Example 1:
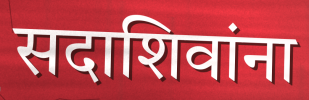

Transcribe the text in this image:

सदाशिवांना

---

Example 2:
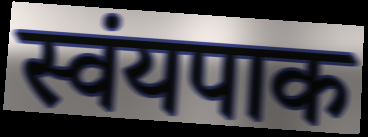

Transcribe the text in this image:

स्वंयपाक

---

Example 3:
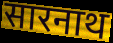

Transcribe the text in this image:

सारनाथ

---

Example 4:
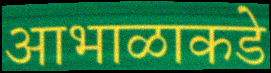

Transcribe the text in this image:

आभाळाकडे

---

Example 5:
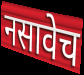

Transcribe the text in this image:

नसावेच